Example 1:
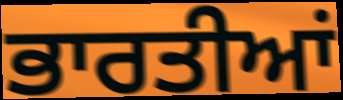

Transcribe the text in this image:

ਭਾਰਤੀਆਂ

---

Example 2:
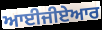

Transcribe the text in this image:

ਆਈਜੀਏਆਰ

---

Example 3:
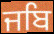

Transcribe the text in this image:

ਜਬਿ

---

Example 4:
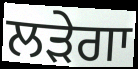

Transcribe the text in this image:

ਲੜੇਗਾ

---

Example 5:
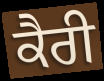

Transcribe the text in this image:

ਕੈਰੀ